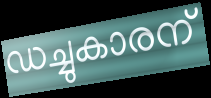
ഡച്ചുകാരന്